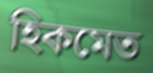
হিকমেত